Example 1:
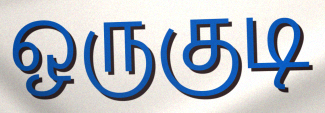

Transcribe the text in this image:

ஒருகுடி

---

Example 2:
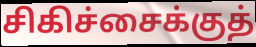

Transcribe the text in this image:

சிகிச்சைக்குத்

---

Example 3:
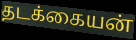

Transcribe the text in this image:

தடக்கையன்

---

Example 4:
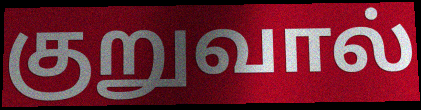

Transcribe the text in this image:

குறுவால்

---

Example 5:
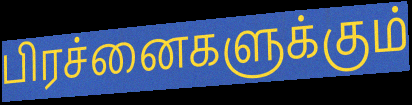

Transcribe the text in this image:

பிரச்னைகளுக்கும்